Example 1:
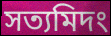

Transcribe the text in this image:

সত্যমিদং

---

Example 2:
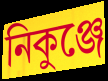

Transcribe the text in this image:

নিকুঞ্জে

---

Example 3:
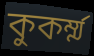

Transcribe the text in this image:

কুকর্ম্ম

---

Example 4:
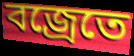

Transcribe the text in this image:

বজ্রেতে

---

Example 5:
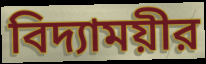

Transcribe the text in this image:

বিদ্যাময়ীর